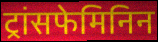
ट्रांसफेमिनिन